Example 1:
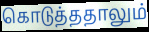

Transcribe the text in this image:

கொடுத்ததாலும்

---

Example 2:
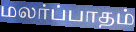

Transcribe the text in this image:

மலர்ப்பாதம்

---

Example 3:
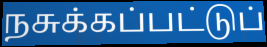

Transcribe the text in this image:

நசுக்கப்பட்டுப்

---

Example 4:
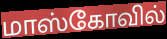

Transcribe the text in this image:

மாஸ்கோவில்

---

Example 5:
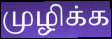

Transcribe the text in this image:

முழிக்க